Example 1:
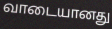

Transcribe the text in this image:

வாடையானது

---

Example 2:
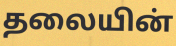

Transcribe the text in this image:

தலையின்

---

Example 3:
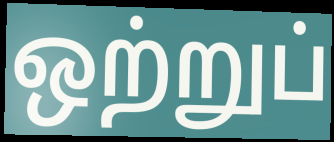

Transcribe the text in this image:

ஒற்றுப்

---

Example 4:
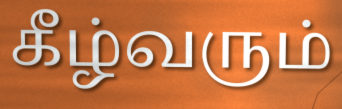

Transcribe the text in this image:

கீழ்வரும்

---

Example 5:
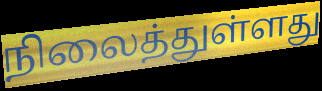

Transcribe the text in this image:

நிலைத்துள்ளது